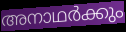
അനാഥർക്കും